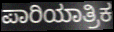
ಪಾರಿಯಾತ್ರಿಕ